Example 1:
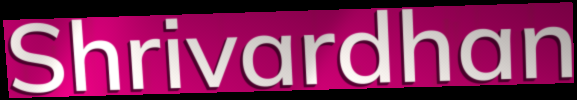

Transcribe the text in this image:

Shrivardhan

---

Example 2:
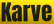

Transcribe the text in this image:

Karve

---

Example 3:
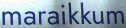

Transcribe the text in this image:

maraikkum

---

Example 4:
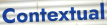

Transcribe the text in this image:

Contextual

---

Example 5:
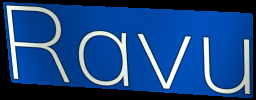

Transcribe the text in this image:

Ravu